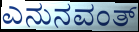
ಎನುನವಂತ್